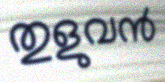
തുളുവൻ